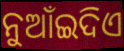
ନୁଆଁଇଦିଏ